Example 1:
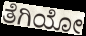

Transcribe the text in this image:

ತೆಗಿಯೋ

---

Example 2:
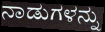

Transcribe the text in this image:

ನಾಡುಗಳನ್ನು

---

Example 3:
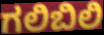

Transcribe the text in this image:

ಗಲಿಬಿಲಿ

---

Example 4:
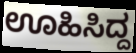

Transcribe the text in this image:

ಊಹಿಸಿದ್ದ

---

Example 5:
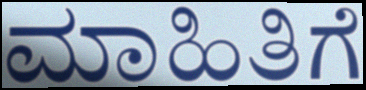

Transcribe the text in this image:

ಮಾಹಿತಿಗೆ